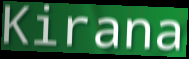
Kirana